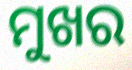
ମୁଖର